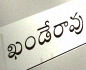
ఖండేరావు